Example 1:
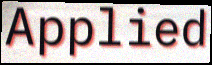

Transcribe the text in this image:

Applied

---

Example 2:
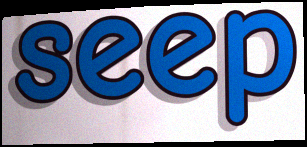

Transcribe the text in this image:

seep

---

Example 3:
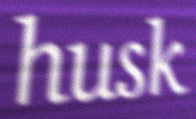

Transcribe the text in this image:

husk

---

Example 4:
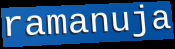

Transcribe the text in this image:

ramanuja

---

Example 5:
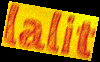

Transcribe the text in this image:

lalit